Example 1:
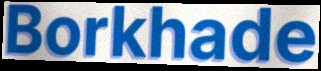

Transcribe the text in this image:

Borkhade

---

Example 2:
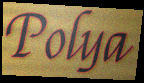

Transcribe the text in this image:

Polya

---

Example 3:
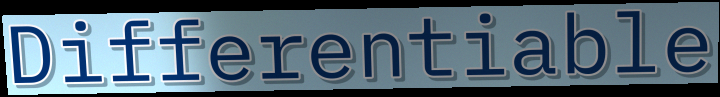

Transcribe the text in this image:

Differentiable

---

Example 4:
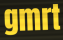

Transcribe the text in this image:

gmrt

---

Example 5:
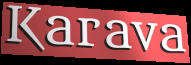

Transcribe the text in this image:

Karava